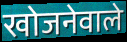
खोजनेवाले